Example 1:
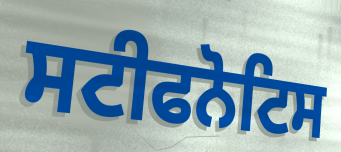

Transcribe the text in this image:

ਸਟੀਫਨੋਟਿਸ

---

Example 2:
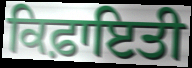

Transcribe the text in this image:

ਕਿਫ਼ਾਇਤੀ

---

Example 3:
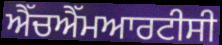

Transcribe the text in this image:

ਐੱਚਐੱਮਆਰਟੀਸੀ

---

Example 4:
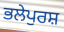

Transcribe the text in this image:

ਭਲੇਪੁਰਸ਼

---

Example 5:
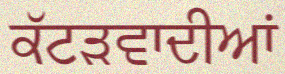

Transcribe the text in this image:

ਕੱਟੜਵਾਦੀਆਂ